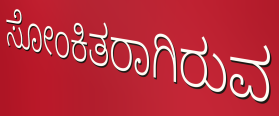
ಸೋಂಕಿತರಾಗಿರುವ